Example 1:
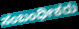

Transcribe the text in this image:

ಸಂಬಂಧೀಕರು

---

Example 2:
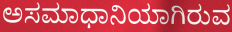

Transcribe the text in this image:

ಅಸಮಾಧಾನಿಯಾಗಿರುವ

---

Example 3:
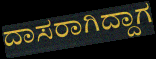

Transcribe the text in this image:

ದಾಸರಾಗಿದ್ದಾಗ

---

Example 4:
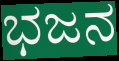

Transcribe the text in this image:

ಭಜನ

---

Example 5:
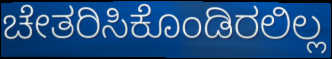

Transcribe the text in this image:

ಚೇತರಿಸಿಕೊಂಡಿರಲಿಲ್ಲ